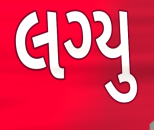
લગ્યુ